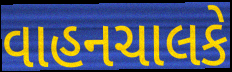
વાહનચાલકે